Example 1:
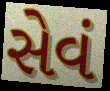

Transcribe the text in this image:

સેવં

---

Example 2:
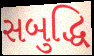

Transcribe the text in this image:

સબુદ્ધિ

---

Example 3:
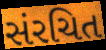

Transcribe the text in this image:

સંરચિત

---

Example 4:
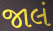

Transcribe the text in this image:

જાલં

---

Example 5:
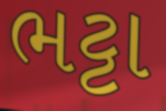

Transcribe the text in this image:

ભટ્ટા